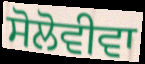
ਸੋਲੋਵੀਵਾ